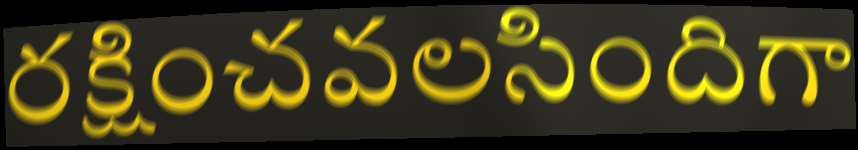
రక్షించవలసిందిగా